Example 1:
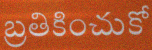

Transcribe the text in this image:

బ్రతికించుకో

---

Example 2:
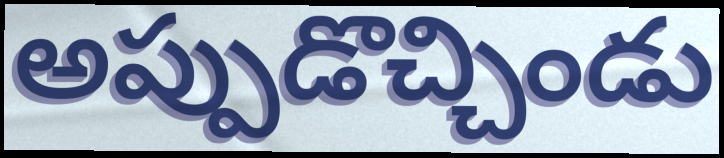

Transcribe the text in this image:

అప్పుడొచ్చిండు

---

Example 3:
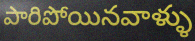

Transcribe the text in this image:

పారిపోయినవాళ్ళు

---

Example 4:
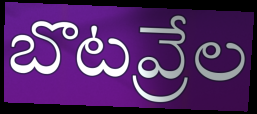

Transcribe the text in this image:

బొటవ్రేల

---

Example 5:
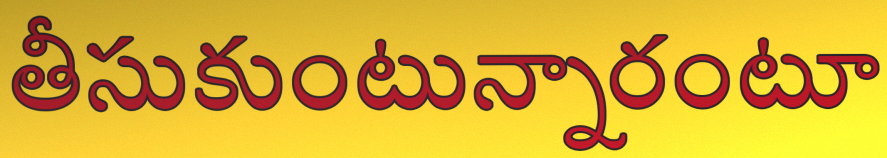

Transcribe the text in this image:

తీసుకుంటున్నారంటూ